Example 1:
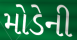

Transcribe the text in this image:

મોડેની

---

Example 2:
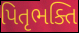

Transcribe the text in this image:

પિતૃભક્તિ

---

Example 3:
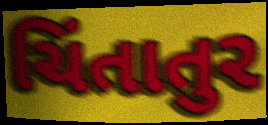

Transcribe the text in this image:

ચિંતાતુર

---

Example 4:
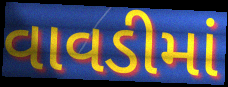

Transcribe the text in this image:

વાવડીમાં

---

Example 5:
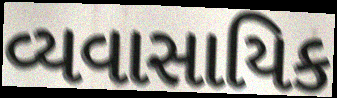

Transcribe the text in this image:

વ્યવાસાયિક